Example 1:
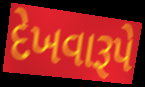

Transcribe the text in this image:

દેખવારૂપે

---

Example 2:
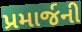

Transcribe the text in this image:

પ્રમાર્જની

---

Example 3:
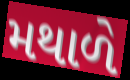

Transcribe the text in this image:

મથાળે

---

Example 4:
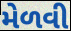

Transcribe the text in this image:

મેળવી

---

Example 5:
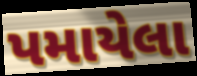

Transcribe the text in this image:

પમાયેલા